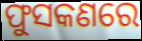
ଫୁସକଣରେ